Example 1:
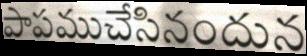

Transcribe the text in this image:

పాపముచేసినందున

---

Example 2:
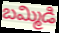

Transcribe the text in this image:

బమ్మిడి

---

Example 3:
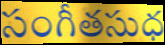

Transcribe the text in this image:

సంగీతసుధ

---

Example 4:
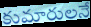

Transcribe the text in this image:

కుమారులనే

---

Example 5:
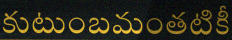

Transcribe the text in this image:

కుటుంబమంతటికీ